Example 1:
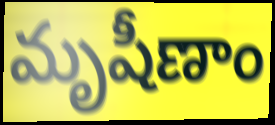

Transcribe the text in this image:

మృషీణాం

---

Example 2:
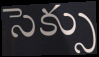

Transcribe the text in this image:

సెక్సు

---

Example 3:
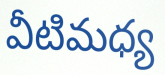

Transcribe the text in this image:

వీటిమధ్య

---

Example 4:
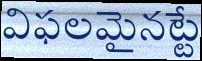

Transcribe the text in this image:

విఫలమైనట్టే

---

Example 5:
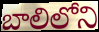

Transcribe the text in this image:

బాలిలోని